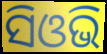
ସିଓଭି